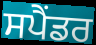
ਸਪੈਂਡਰ